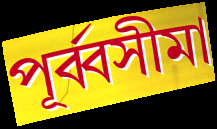
পূর্ব্বসীমা